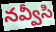
నవ్వీసి